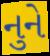
નુને